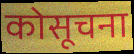
कोसूचना